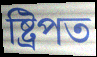
ষ্ট্ৰিপত